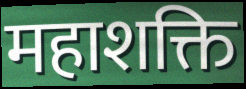
महाशक्ति